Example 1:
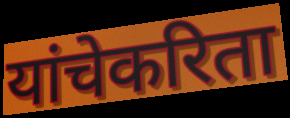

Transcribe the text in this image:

यांचेकरिता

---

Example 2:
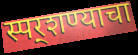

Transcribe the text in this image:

स्पर्शण्याचा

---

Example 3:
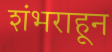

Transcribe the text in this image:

शंभराहून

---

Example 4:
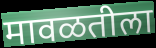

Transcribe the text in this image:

मावळतीला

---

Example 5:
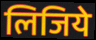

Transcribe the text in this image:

लिजिये